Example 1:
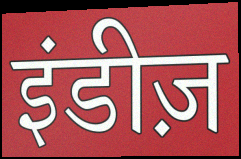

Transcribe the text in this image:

इंडीज़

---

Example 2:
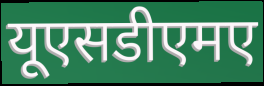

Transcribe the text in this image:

यूएसडीएमए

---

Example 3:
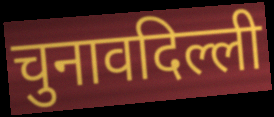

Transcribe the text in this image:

चुनावदिल्ली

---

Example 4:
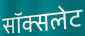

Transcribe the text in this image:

सॉक्सलेट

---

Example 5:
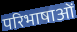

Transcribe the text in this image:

परिभाषाओं